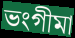
ভংগীমা